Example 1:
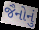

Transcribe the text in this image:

જૈનોનું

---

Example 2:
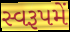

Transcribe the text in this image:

સ્વરૂપમેં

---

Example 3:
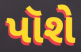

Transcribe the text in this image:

પૉશે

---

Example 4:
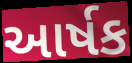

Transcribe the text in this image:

આર્ષક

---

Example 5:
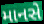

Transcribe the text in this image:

માનસે